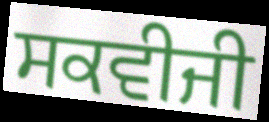
ਸਕਵੀਜੀ